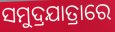
ସମୁଦ୍ରଯାତ୍ରାରେ